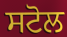
ਸਟੋਲ